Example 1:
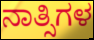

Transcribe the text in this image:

ನಾತ್ಸಿಗಳ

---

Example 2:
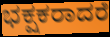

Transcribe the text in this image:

ಭಕ್ಷಕರಾದರೆ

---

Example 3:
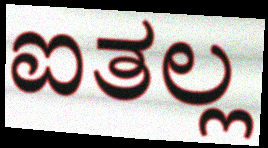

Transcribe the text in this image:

ಐತಲ್ಲ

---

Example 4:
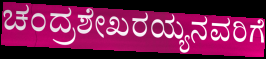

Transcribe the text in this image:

ಚಂದ್ರಶೇಖರಯ್ಯನವರಿಗೆ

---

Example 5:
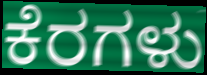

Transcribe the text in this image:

ಕೆರಗಳು